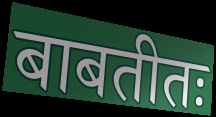
बाबतीतः